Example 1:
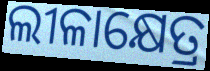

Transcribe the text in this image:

ଲୀଳାକ୍ଷେତ୍ର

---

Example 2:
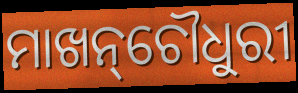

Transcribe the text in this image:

ମାଖନ୍‌ଚୌଧୁରୀ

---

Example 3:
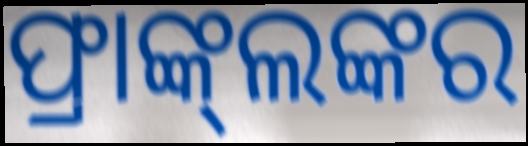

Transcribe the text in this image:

ଫ୍ରାଙ୍କ୍‌ଲଙ୍କର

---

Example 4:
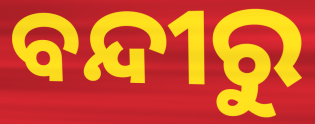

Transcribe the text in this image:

ବନ୍ଦୀରୁ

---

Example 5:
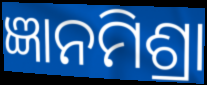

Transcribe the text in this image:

ଜ୍ଞାନମିଶ୍ରା